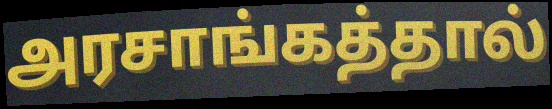
அரசாங்கத்தால்